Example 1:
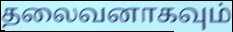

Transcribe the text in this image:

தலைவனாகவும்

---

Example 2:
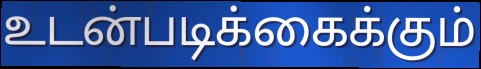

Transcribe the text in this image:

உடன்படிக்கைக்கும்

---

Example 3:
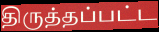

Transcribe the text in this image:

திருத்தப்பட்ட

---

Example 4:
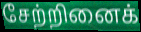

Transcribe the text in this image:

சேற்றினைக்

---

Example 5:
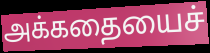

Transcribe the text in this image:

அக்கதையைச்